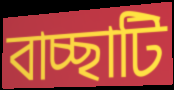
বাচ্ছাটি